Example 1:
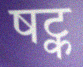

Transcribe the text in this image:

षट्क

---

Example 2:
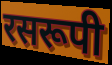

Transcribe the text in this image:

रसरूपी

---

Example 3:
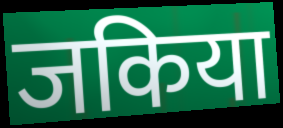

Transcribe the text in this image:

जकिया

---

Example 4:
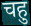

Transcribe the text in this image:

चहु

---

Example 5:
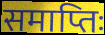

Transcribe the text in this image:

समाप्तिः